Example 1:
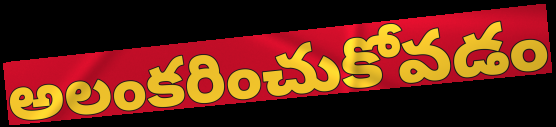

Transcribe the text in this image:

అలంకరించుకోవడం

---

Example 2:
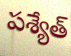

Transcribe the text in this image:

పశ్యేత్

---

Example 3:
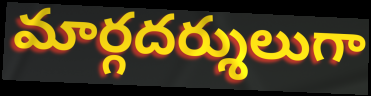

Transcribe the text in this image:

మార్గదర్శులుగా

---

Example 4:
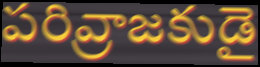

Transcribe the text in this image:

పరివ్రాజకుడై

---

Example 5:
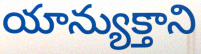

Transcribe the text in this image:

యాన్యుక్తాని